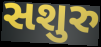
સશુરુ